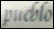
pueblo